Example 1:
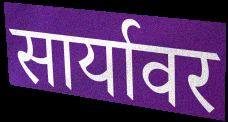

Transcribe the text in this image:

सार्यावर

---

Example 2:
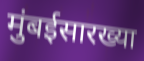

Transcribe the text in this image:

मुंबईसारख्या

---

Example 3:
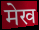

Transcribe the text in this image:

मेख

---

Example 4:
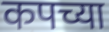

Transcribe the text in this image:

कपच्या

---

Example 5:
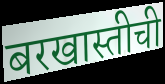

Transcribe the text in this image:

बरखास्तीची